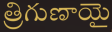
త్రిగుణాయై